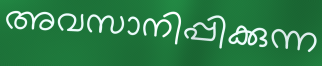
അവസാനിപ്പിക്കുന്ന